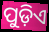
ପୁଡ଼ିଏ